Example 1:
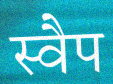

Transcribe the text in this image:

स्वैप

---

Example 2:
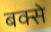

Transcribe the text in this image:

बक्से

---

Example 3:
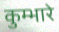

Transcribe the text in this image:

कुम्भारे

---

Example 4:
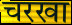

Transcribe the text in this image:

चरखा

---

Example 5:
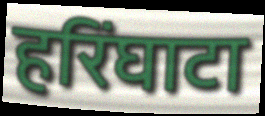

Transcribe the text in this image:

हरिंघाटा